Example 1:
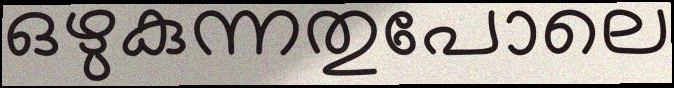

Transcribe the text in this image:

ഒഴുകുന്നതുപോലെ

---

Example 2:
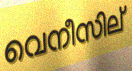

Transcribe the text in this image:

വെനീസില്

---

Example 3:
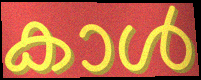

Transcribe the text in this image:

കാൾ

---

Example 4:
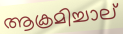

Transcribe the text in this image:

ആക്രമിച്ചാല്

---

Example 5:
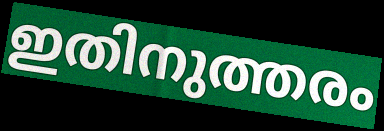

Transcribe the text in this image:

ഇതിനുത്തരം